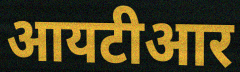
आयटीआर